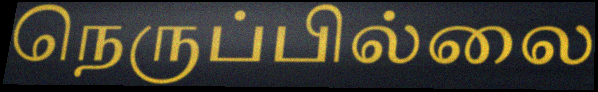
நெருப்பில்லை